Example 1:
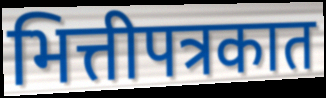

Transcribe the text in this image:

भित्तीपत्रकात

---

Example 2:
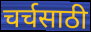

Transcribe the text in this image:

चर्चसाठी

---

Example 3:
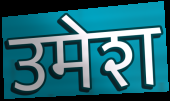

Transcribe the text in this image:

उमेश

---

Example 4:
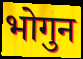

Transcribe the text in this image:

भोगुन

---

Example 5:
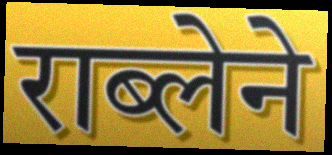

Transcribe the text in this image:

राब्लेने